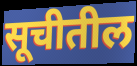
सूचीतील